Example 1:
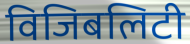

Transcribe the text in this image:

विजिबलिटी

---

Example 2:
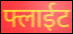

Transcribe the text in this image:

फ्लाईट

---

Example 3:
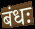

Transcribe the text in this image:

बंधः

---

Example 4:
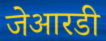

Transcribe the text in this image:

जेआरडी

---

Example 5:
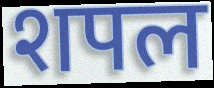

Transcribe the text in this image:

शपल